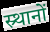
स्र्थानों